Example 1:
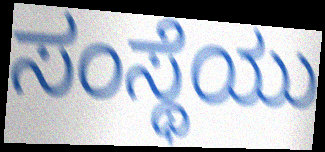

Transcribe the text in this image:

ಸಂಸ್ಥೆಯು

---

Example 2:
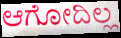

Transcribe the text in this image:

ಆಗೋದಿಲ್ಲ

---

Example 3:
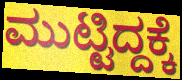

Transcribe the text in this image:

ಮುಟ್ಟಿದ್ದಕ್ಕೆ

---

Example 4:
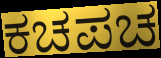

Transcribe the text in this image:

ಕಚಪಚ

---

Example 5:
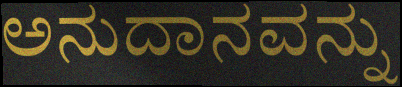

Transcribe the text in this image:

ಅನುದಾನವನ್ನು